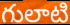
గులాటి